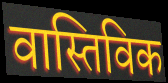
वास्तिविक